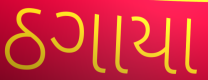
ઠગાયા